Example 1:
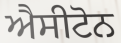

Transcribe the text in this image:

ਐਸੀਟੋਨ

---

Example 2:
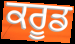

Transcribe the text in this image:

ਕਰੂਡ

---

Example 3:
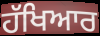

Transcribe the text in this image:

ਹੱਖਿਆਰ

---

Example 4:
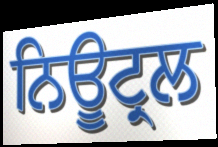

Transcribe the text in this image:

ਨਿਊਟ੍ਰਲ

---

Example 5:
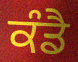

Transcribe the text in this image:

ਕੰਡੈ